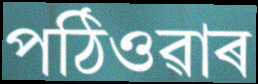
পঠিওৱাৰ